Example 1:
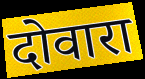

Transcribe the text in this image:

दोवारा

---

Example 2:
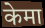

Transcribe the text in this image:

केमा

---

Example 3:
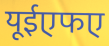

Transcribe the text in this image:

यूईएफए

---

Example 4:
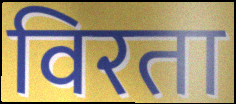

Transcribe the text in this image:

विरता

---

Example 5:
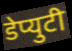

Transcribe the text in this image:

डेप्युटी